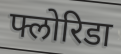
फ्लोरिडा